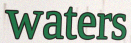
waters